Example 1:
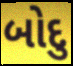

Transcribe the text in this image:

બોદુ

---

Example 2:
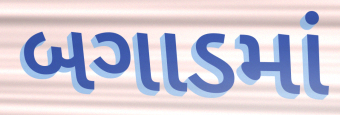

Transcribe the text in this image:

બગાડમાં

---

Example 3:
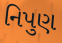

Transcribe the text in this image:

નિપુણ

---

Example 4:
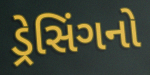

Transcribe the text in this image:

ડ્રેસિંગનો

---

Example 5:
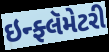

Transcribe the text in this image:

ઇન્ફ્લૅમેટરી